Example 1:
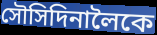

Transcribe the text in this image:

সৌসিদিনালৈকে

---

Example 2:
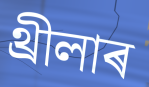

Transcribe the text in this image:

থ্ৰীলাৰ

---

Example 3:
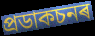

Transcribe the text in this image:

প্ৰডাকচনৰ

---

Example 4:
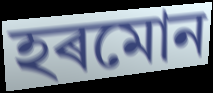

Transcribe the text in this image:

হৰমোন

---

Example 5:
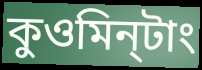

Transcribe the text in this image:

কুওমিন্‌টাং